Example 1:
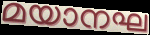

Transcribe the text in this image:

മയാനഘ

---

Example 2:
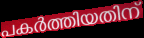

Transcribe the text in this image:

പകർത്തിയതിന്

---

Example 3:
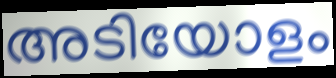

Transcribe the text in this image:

അടിയോളം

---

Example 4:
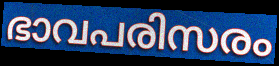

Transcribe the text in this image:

ഭാവപരിസരം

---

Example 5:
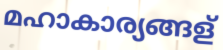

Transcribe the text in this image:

മഹാകാര്യങ്ങള്